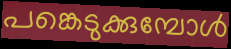
പങ്കെടുക്കുമ്പോൾ